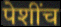
पेशींच